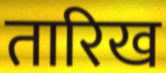
तारिख